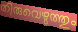
തിരുവെഴുത്തും